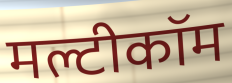
मल्टीकॉम